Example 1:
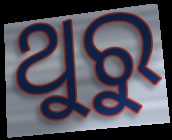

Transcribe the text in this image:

ଥୁରୁ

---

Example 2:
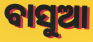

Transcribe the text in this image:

ବାସୁଆ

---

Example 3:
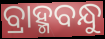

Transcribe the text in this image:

ବ୍ରାହ୍ମବନ୍ଧୁ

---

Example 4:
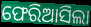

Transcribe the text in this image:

ଫେରିଆସିଲା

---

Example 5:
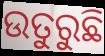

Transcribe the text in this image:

ଉତୁରୁଛି